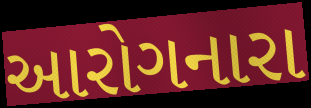
આરોગનારા